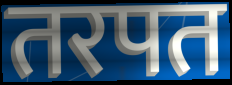
तरपत